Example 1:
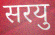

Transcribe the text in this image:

सरयु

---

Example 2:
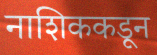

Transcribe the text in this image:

नाशिककडून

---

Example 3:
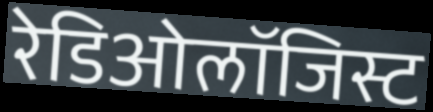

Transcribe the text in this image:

रेडिओलॉजिस्ट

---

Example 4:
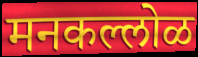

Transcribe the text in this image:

मनकल्लोळ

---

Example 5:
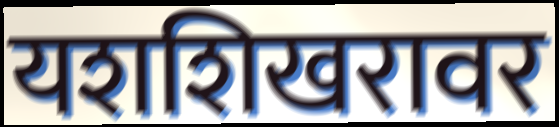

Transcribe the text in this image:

यशशिखरावर